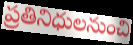
ప్రతినిధులనుంచి